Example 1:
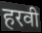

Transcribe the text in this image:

हरवी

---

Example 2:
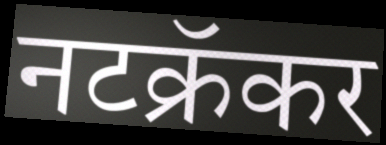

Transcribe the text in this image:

नटक्रॅकर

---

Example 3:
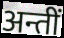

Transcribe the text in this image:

अन्तीं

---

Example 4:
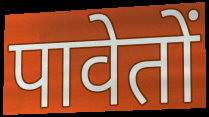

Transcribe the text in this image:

पावेतों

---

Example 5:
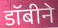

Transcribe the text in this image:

डॉबीने